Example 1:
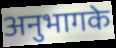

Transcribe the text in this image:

अनुभागके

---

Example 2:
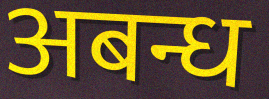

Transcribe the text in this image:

अबन्ध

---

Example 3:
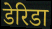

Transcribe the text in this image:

डेरिडा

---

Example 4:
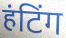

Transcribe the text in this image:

हंटिंग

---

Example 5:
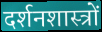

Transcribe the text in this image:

दर्शनशास्त्रों